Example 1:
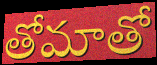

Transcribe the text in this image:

తోమాతో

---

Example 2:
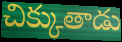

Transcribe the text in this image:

చిక్కుతాడు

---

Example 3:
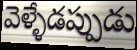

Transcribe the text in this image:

వెళ్ళేడప్పుడు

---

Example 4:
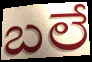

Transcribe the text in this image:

బలే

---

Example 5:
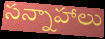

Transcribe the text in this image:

సన్నాహాలు